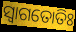
ସ୍ଵାଗତୋତିଃ